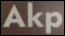
Akp